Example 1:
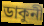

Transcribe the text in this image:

ডাকুনী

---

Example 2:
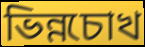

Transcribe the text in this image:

ভিন্নচোখ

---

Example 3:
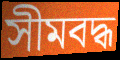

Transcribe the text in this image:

সীমবদ্ধ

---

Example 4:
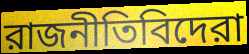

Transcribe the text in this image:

রাজনীতিবিদেরা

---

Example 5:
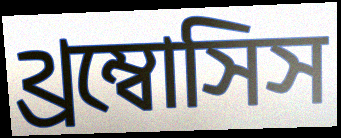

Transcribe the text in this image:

থ্রম্বোসিস